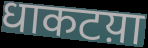
धाकटय़ा